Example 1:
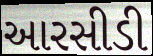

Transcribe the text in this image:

આરસીડી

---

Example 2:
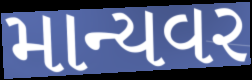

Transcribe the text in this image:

માન્યવર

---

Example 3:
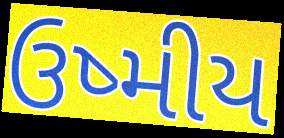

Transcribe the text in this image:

ઉષ્મીય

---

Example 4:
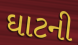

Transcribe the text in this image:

ઘાટની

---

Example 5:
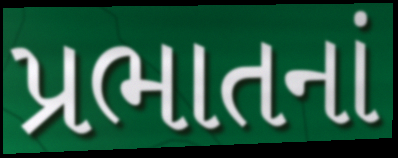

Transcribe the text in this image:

પ્રભાતનાં